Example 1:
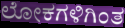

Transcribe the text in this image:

ಲೋಕಗಳಿಗಿಂತ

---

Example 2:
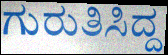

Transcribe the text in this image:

ಗುರುತಿಸಿದ್ದ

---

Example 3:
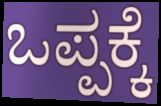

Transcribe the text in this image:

ಒಪ್ಪಕ್ಕೆ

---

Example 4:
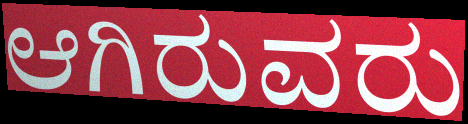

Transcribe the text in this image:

ಆಗಿರುವರು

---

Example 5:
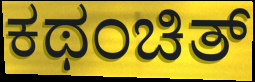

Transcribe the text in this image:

ಕಥಂಚಿತ್